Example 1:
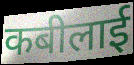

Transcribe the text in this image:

कबीलाई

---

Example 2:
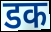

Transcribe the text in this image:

डक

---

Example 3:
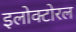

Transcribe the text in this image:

इलोक्टोरल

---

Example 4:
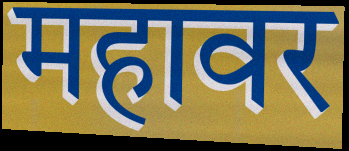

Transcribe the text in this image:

महावर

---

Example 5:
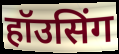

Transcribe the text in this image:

हॉउसिंग